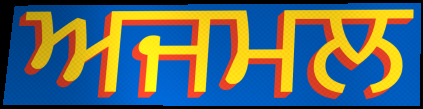
ਅਜਮਲ